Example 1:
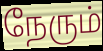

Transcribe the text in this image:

நேரும்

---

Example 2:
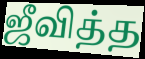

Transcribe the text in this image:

ஜீவித்த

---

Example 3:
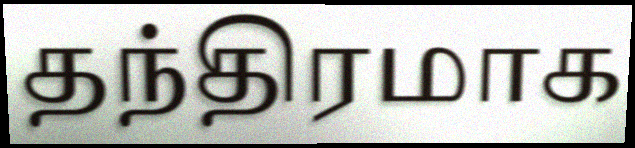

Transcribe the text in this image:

தந்திரமாக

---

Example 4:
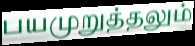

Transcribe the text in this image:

பயமுறுத்தலும்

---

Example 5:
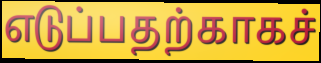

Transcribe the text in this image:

எடுப்பதற்காகச்